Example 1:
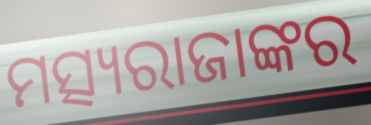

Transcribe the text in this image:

ମତ୍ସ୍ୟରାଜାଙ୍କର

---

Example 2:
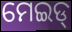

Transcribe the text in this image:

ମେଇଡ୍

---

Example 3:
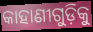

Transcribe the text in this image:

କାହାଣୀଗୁଡ଼ିକୁ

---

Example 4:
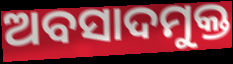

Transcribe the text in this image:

ଅବସାଦମୁକ୍ତ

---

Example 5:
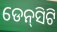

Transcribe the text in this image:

ଡେନ୍‌ସିଟି